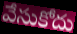
వేసుకోదు